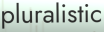
pluralistic